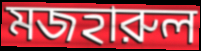
মজহাৰুল